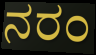
ನರಂ